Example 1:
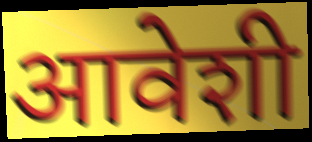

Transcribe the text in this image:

आवेशी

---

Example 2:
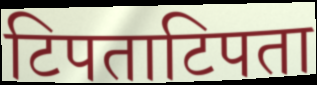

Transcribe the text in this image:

टिपताटिपता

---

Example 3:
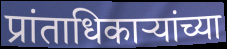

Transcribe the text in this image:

प्रांताधिकाऱ्यांच्या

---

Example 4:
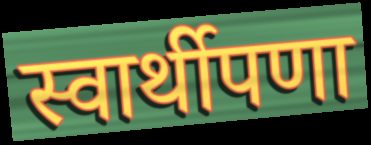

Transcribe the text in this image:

स्वार्थीपणा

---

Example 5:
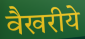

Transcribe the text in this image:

वैखरीये